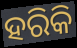
ହରିକି